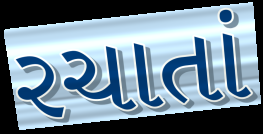
રચાતાં